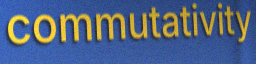
commutativity